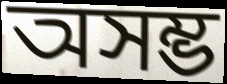
অসম্ভ